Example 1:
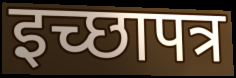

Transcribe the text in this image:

इच्छापत्र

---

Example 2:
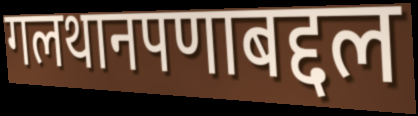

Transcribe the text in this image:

गलथानपणाबद्दल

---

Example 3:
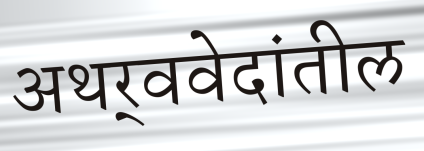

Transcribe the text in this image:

अथर्ववेदांतील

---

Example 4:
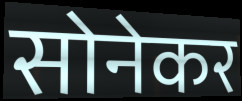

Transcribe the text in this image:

सोनेकर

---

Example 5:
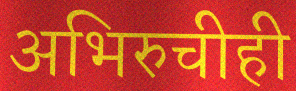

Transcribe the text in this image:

अभिरुचीही